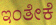
ಇಂತೇಕೆ